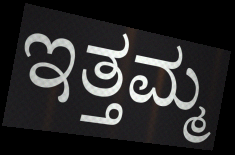
ಇತ್ತಮ್ಮ